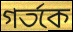
গর্তকে